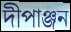
দীপাঞ্জন